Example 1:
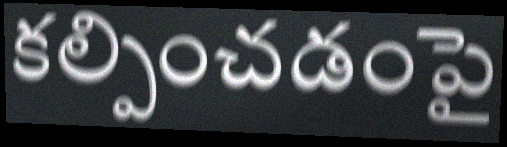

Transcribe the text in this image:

కల్పించడంపై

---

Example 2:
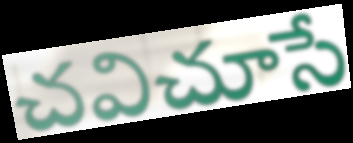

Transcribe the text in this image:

చవిచూసే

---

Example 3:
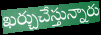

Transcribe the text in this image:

ఖర్చుచేస్తున్నారు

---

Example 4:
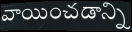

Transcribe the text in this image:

వాయించడాన్ని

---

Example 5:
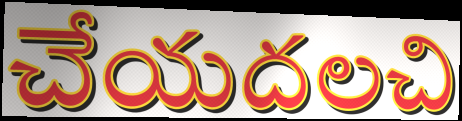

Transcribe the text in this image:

చేయదలచి